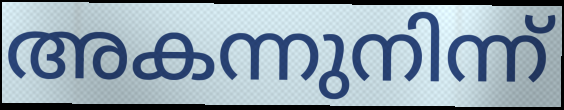
അകന്നുനിന്ന്